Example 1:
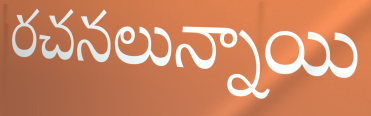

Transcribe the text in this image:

రచనలున్నాయి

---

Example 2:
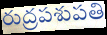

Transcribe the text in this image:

రుద్రపశుపతి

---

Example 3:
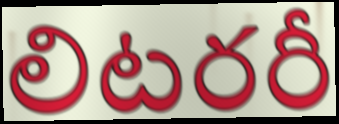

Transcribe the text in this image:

లిటరరీ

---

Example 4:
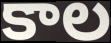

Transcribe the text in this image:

కాల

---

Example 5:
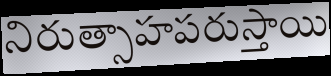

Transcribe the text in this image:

నిరుత్సాహపరుస్తాయి